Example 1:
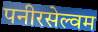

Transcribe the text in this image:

पनीरसेल्वम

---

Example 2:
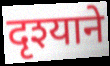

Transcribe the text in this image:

दृश्याने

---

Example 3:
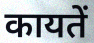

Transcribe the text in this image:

कायतें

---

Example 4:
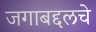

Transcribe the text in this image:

जगाबद्दलचे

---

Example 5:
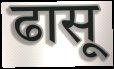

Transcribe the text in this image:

ढासू